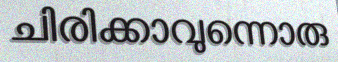
ചിരിക്കാവുന്നൊരു